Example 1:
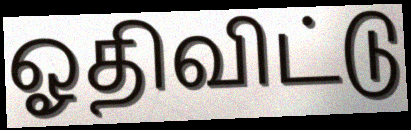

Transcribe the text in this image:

ஓதிவிட்டு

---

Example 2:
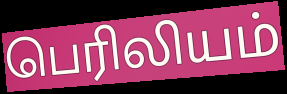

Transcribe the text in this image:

பெரிலியம்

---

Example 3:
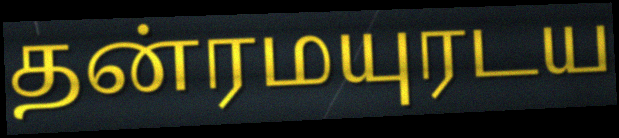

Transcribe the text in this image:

தன்ரமயுரடய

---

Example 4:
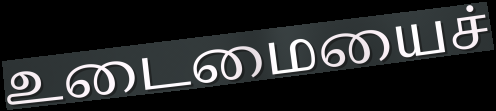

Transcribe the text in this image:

உடைமையைச்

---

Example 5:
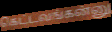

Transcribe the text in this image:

கெட்டவங்கன்னு